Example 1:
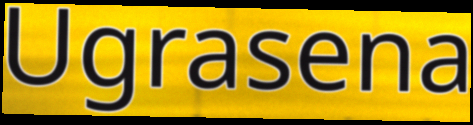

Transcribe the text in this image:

Ugrasena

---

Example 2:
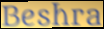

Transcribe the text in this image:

Beshra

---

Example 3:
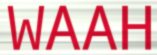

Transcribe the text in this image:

WAAH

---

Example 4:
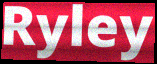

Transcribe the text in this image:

Ryley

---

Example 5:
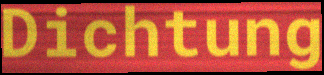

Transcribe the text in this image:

Dichtung